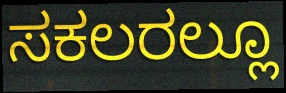
ಸಕಲರಲ್ಲೂ